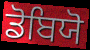
ਡੋਬਿਯੋ